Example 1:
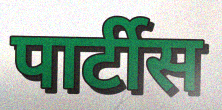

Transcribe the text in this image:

पार्टीस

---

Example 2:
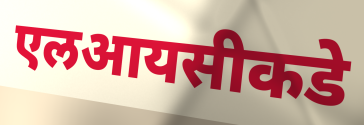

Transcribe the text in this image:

एलआयसीकडे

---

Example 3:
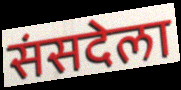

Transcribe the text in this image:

संसदेला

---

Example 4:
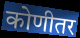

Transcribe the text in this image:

कोणीतर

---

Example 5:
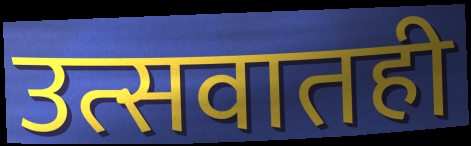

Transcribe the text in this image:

उत्सवातही